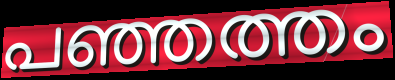
പഞ്ഞത്തം